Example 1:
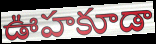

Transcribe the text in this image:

ఊహకూడా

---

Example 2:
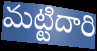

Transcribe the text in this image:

మట్టిదారి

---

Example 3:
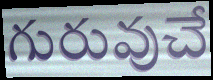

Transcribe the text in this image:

గురువుచే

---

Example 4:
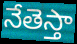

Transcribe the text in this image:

నేతెస్తా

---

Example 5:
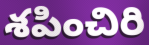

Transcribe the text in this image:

శపించిరి